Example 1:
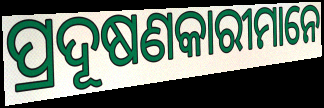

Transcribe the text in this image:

ପ୍ରଦୂଷଣକାରୀମାନେ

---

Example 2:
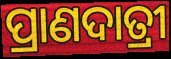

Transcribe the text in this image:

ପ୍ରାଣଦାତ୍ରୀ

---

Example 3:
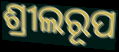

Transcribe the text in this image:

ଶ୍ରୀଲରୂପ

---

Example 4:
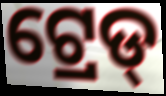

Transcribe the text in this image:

ଟ୍ରେଡ୍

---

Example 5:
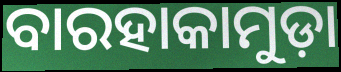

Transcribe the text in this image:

ବାରହାକାମୁଡ଼ା